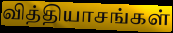
வித்தியாசங்கள்